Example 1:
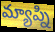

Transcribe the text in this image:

మ్యాప్ని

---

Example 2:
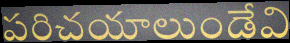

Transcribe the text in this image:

పరిచయాలుండేవి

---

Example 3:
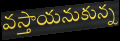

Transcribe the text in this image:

వస్తాయనుకున్న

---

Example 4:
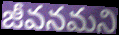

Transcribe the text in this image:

జీవనమని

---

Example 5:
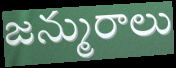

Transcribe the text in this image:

జన్మురాలు